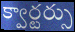
క్వార్టర్సు